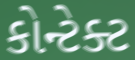
કોન્ટેક્ટ